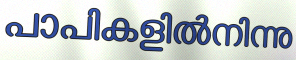
പാപികളിൽനിന്നു